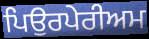
ਪਿਉਰਪੇਰੀਅਮ